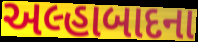
અલ્હાબાદના